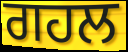
ਗਹਲ